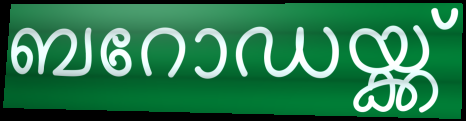
ബറോഡയ്ക്ക്